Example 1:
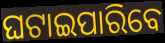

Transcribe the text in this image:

ଘଟାଇପାରିବେ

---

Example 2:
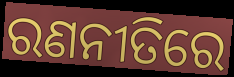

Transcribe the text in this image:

ରଣନୀତିରେ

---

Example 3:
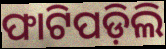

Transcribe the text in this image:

ଫାଟିପଡ଼ିଲି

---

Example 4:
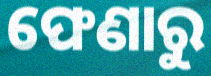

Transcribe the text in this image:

ଫେଣାରୁ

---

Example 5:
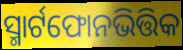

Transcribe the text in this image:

ସ୍ମାର୍ଟଫୋନଭିତ୍ତିକ